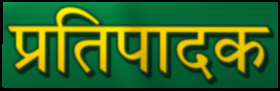
प्रतिपादक